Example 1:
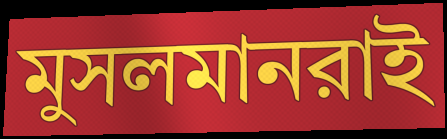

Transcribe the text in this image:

মুসলমানরাই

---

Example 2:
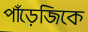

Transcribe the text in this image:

পাঁড়েজিকে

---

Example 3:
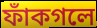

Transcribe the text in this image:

ফাঁকগলে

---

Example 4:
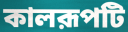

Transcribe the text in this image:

কালরূপটি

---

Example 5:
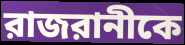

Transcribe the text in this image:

রাজরানীকে